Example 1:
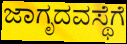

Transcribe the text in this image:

ಜಾಗೃದವಸ್ಥೆಗೆ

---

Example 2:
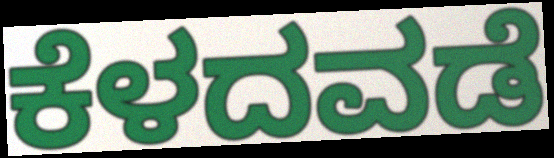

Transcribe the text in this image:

ಕೆಳದವಡೆ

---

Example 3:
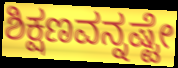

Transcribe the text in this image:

ಶಿಕ್ಷಣವನ್ನಷ್ಟೇ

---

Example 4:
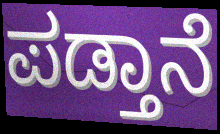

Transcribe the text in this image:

ಪಡ್ತಾನೆ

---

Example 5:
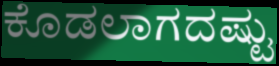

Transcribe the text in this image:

ಕೊಡಲಾಗದಷ್ಟು